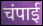
चंपाई